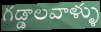
గడ్డాలవాళ్ళు